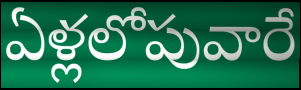
ఏళ్లలోపువారే